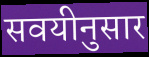
सवयीनुसार